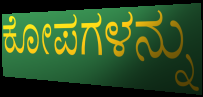
ಕೋಪಗಳನ್ನು